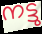
നട്ടു